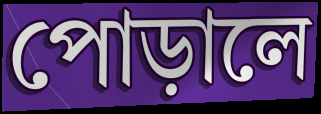
পোড়ালে